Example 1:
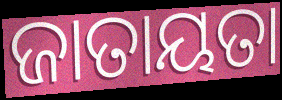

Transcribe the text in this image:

ଜାତାୟତା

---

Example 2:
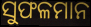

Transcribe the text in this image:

ସୁଫଳମାନ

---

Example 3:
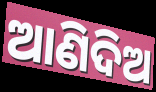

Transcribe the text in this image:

ଆଣିଦିଅ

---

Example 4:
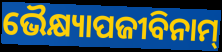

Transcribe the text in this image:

ଭୈକ୍ଷ୍ୟାପଜୀବିନାମ୍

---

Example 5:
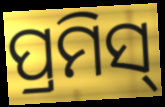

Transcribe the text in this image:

ପ୍ରମିସ୍